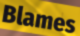
Blames